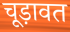
चूड़ावत